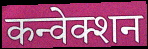
कन्वेक्शन